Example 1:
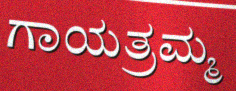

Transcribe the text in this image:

ಗಾಯತ್ರಮ್ಮ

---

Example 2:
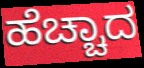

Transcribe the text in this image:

ಹೆಚ್ಚಾದ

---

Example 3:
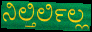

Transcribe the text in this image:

ನಿಲ್ತಿರ್ಲಿಲ್ಲ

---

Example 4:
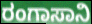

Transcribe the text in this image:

ರಂಗಾಸಾನಿ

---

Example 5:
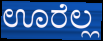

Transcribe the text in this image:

ಊರೆಲ್ಲ